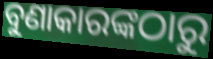
ବୁଣାକାରଙ୍କଠାରୁ